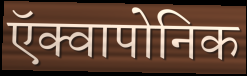
ऍक्वापोनिक